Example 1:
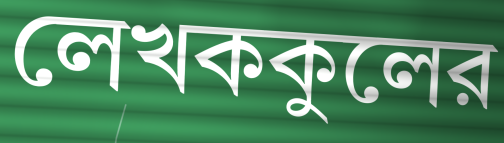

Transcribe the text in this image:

লেখককুলের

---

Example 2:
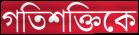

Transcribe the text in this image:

গতিশক্তিকে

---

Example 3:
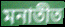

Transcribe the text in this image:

মনাতীত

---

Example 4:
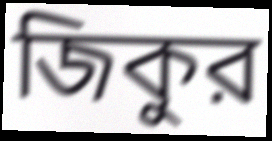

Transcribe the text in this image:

জিকুর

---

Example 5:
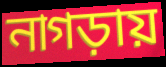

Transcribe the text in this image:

নাগড়ায়